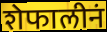
शेफालीनं